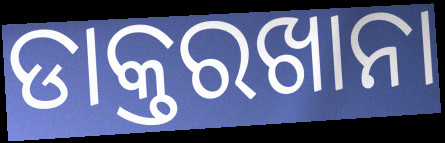
ଡାକ୍ତରଖାନା